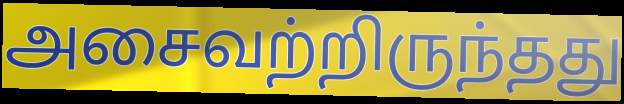
அசைவற்றிருந்தது